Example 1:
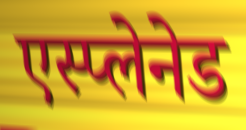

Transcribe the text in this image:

एस्प्लेनेड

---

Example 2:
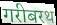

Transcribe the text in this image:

गरीबरथ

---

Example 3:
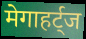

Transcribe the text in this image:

मेगाहर्ट्ज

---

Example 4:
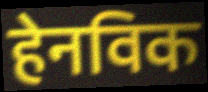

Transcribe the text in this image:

हेनविक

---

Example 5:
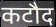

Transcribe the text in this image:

कटौद